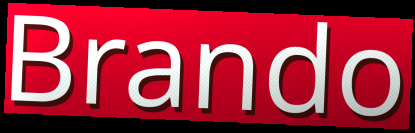
Brando